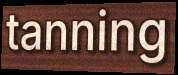
tanning